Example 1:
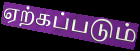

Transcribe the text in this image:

ஏற்கப்படும்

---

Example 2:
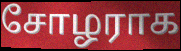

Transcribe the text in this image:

சோழராக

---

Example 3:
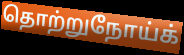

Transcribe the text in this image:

தொற்றுநோய்க்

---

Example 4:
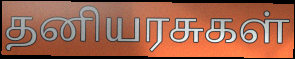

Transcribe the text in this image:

தனியரசுகள்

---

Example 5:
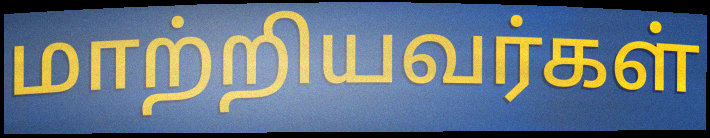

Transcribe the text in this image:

மாற்றியவர்கள்